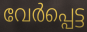
വേർപ്പെട്ട